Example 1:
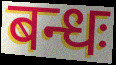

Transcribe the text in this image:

बन्धः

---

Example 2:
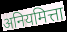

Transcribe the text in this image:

अनियमित्ता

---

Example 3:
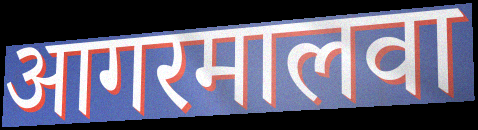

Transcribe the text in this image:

आगरमालवा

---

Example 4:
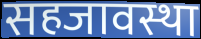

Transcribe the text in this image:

सहजावस्था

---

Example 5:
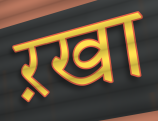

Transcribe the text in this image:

ऱखा